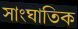
সাংঘাতিক